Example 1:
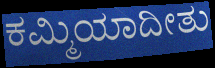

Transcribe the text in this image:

ಕಮ್ಮಿಯಾದೀತು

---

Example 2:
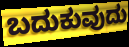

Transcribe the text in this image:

ಬದುಕುವುದು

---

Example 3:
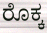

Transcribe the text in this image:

ರೊಕ್ಕ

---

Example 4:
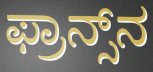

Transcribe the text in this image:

ಫ್ರಾನ್ಸ್‌ನ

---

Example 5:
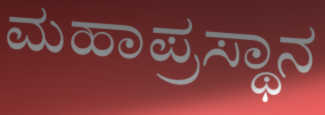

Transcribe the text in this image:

ಮಹಾಪ್ರಸ್ಥಾನ